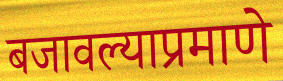
बजावल्याप्रमाणे